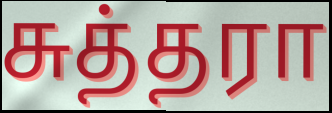
சுத்தரா